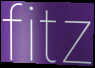
fitz